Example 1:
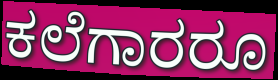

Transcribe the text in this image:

ಕಲೆಗಾರರೂ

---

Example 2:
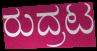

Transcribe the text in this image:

ರುದ್ರಟ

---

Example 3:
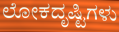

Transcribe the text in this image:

ಲೋಕದೃಷ್ಟಿಗಳು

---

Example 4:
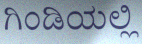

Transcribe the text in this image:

ಗಿಂಡಿಯಲ್ಲಿ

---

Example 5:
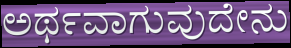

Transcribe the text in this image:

ಅರ್ಥವಾಗುವುದೇನು